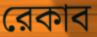
রেকাব